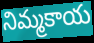
నిమ్మకాయ